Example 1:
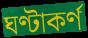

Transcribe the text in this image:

ঘণ্টাকর্ণ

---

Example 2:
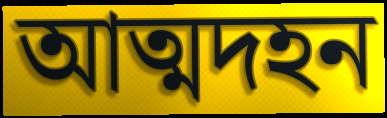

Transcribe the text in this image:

আত্মদহন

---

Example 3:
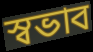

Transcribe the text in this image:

স্বভাব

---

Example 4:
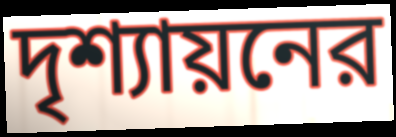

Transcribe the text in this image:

দৃশ্যায়নের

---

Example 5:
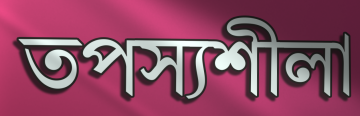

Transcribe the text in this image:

তপস্যশীলা